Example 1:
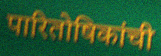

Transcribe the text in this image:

पारितोषिकांची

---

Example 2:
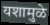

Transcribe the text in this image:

यशामुळे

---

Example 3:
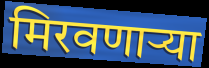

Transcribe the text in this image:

मिरवणाऱ्या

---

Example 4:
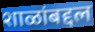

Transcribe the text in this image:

शाळांबद्दल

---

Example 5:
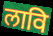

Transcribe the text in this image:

लावि